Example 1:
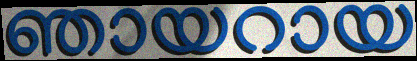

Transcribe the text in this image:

ഞായറായ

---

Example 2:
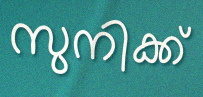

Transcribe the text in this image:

സുനിക്ക്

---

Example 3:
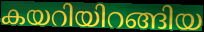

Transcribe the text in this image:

കയറിയിറങ്ങിയ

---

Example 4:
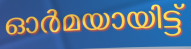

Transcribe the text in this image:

ഓർമയായിട്ട്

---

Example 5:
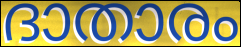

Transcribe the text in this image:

ദാതാരം